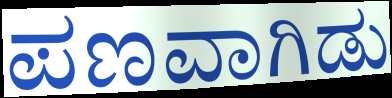
ಪಣವಾಗಿಡು